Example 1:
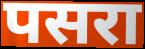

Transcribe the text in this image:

पसरा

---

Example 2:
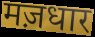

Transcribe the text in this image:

मज़धार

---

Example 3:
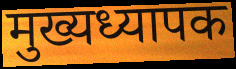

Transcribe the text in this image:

मुख्यध्यापक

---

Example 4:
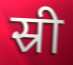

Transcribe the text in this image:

स्री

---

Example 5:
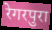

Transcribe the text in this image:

रेगरपुरा